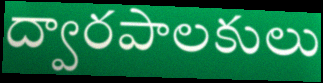
ద్వారపాలకులు